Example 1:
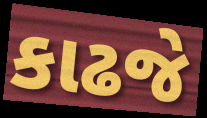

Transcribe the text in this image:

કાઢજે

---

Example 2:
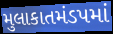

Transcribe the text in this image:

મુલાકાતમંડપમાં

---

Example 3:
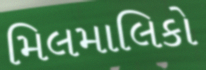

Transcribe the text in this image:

મિલમાલિકો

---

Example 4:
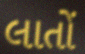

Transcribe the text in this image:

લાતોં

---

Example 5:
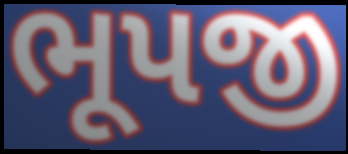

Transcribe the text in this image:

ભૂપજી